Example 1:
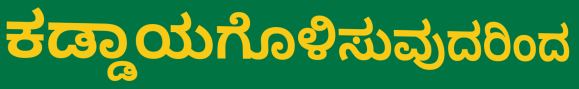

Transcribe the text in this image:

ಕಡ್ಡಾಯಗೊಳಿಸುವುದರಿಂದ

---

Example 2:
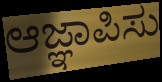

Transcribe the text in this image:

ಆಜ್ಞಾಪಿಸು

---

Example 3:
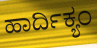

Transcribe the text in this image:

ಹಾರ್ದಿಕ್ಯಂ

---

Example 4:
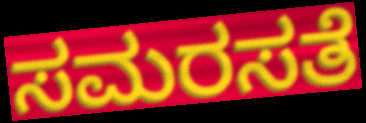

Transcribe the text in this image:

ಸಮರಸತೆ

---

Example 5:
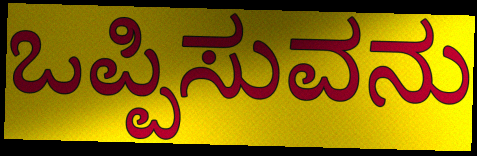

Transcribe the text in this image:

ಒಪ್ಪಿಸುವನು